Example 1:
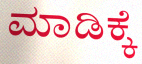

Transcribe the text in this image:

ಮಾಡಿಕ್ಕೆ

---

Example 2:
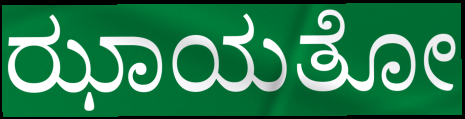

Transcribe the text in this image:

ಝಾಯತೋ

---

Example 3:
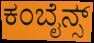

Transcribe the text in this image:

ಕಂಬೈನ್ಸ್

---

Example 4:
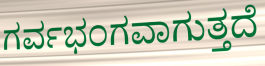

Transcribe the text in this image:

ಗರ್ವಭಂಗವಾಗುತ್ತದೆ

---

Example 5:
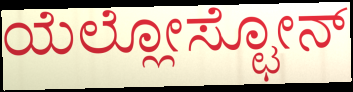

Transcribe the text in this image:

ಯೆಲ್ಲೋಸ್ಟೋನ್